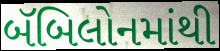
બૅબિલોનમાંથી